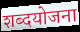
शब्दयोजना